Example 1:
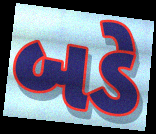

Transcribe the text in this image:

બડે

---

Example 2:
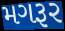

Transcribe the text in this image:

મગરૂર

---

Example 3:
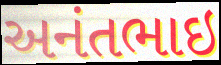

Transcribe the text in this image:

અનંતભાઇ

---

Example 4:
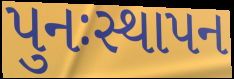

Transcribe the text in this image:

પુનઃસ્થાપન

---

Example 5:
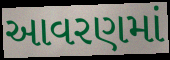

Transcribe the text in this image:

આવરણમાં